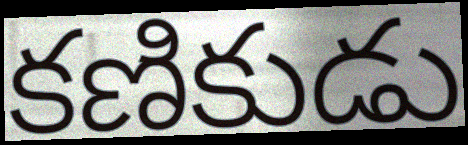
కణికుడు